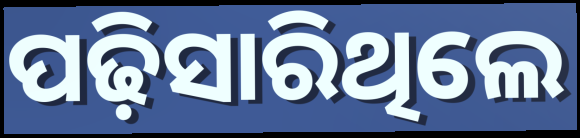
ପଢ଼ିସାରିଥିଲେ